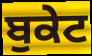
ਬੁਕੇਟ